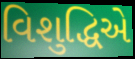
વિશુદ્ધિએ